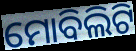
ମୋବିଲିଟି